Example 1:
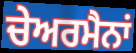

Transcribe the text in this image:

ਚੇਅਰਮੈਨਾਂ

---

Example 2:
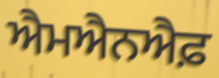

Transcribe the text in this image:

ਐਮਐਨਐਫ਼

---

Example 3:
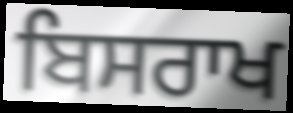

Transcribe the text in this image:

ਬਿਸਰਾਖ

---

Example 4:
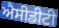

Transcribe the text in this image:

ਐਸੀਡੀਟੀ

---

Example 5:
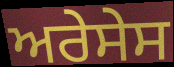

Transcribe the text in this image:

ਅਰੇਸੇਸ